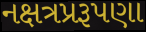
નક્ષત્રપ્રરૂપણા